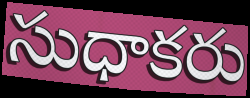
సుధాకరు